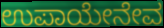
ಉಪಾಯೇನೇವ